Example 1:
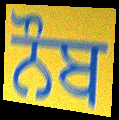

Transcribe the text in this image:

ਨੌਬ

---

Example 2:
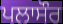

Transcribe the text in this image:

ਪਲਾਸੌਰ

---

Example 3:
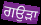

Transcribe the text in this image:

ਗਉੜਾ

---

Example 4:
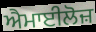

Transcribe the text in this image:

ਐਮਾਈਲੋਜ਼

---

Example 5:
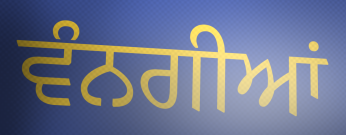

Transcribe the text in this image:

ਵੰਨਗੀਆਂ